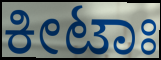
ಕೀಟಾಃ